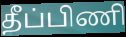
தீப்பிணி